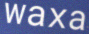
waxa